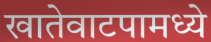
खातेवाटपामध्ये